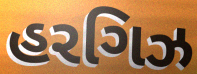
હરગિઝ